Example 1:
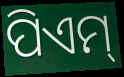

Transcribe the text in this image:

ପିଏମ୍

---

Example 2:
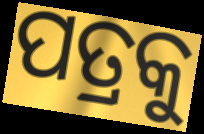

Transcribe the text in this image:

ପତ୍ରକୁ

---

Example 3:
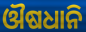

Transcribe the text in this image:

ଔଷଧାନି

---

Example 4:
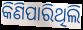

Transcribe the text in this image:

କିଣିପାରିଥିଲି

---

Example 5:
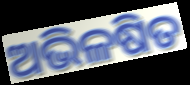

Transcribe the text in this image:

ଅଭିଳଷିତ